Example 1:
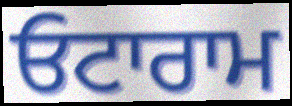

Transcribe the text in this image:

ਓਟਾਰਾਮ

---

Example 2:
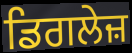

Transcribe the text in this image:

ਡਿਗਲੇਜ਼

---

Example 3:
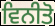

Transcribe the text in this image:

ਵਿਨੀਤੋ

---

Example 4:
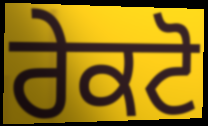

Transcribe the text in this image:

ਰੇਕਟੋ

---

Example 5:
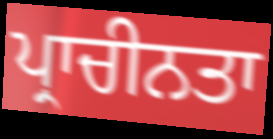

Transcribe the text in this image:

ਪ੍ਰਾਚੀਨਤਾ